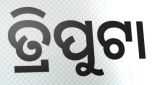
ତ୍ରିପୁଟା